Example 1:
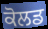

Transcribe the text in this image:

ਕੋਲਡ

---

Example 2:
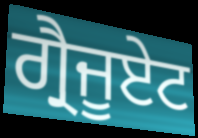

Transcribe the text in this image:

ਗ੍ਰੈਜੂਏਟ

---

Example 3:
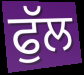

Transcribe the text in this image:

ਫੁੱਲ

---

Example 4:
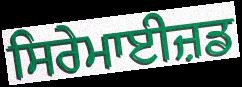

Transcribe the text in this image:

ਸਿਰੇਮਾਈਜ਼ਡ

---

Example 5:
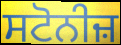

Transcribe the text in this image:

ਸਟੋਨੀਜ਼